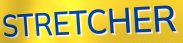
STRETCHER